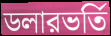
ডলারভর্তি